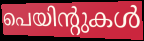
പെയിന്റുകൾ